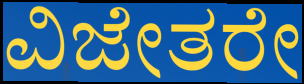
ವಿಜೇತರೇ